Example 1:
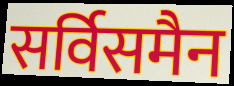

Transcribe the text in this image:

सर्विसमैन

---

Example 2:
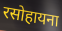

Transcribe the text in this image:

रसोहायना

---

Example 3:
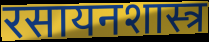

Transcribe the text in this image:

रसायनशास्त्र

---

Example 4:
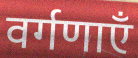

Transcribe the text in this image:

वर्गणाएँ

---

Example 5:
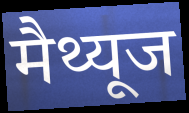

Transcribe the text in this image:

मैथ्‍यूज